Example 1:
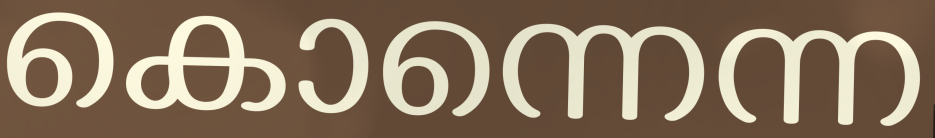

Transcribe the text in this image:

കൊന്നെന്ന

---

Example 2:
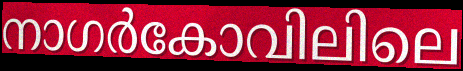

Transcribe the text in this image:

നാഗർകോവിലിലെ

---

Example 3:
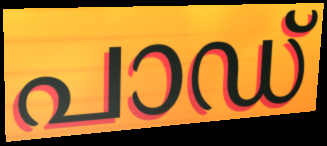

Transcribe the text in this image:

പാഡ്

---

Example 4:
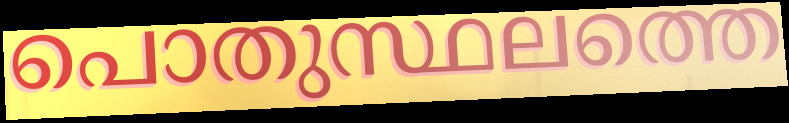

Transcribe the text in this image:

പൊതുസ്ഥലത്തെ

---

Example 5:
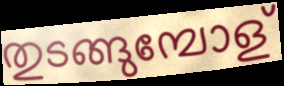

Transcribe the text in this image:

തുടങ്ങുമ്പോള്